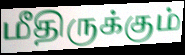
மீதிருக்கும்